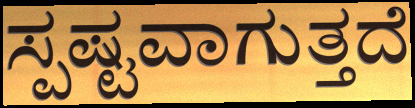
ಸ್ಪಷ್ಟವಾಗುತ್ತದೆ